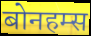
बोनहम्स